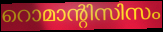
റൊമാന്റിസിസം